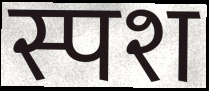
स्पश